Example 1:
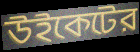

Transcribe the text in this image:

উইকেটের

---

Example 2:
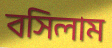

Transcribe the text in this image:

বসিলাম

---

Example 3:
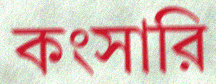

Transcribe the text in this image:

কংসারি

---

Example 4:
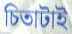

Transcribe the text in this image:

চিতাটাই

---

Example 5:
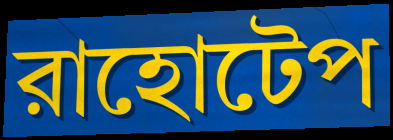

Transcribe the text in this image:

রাহোটেপ